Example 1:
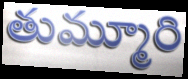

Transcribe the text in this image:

తుమ్మూరి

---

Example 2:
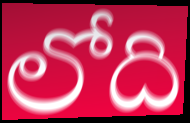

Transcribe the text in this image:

లోది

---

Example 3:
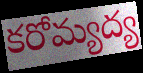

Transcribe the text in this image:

కరోమ్యద్య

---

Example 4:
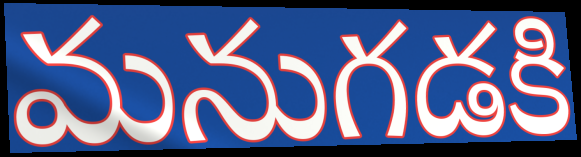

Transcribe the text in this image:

మనుగడకి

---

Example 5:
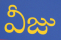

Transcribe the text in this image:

వీజు